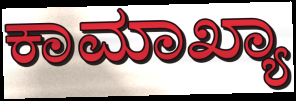
ಕಾಮಾಖ್ಯಾ